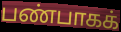
பண்பாகக்